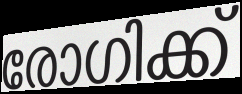
രോഗിക്ക്